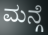
ಮನ್ಗೆ